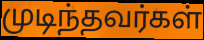
முடிந்தவர்கள்